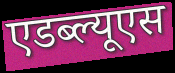
एडब्ल्यूएस